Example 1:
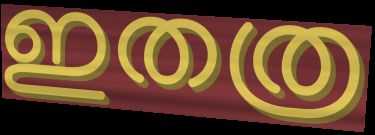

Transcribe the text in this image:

ഇതത്ര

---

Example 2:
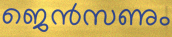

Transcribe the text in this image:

ജെൻസണും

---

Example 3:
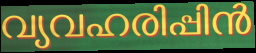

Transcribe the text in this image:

വ്യവഹരിപ്പിൻ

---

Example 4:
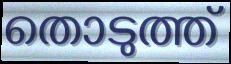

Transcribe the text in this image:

തൊടുത്ത്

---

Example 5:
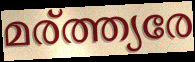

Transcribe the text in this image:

മര്ത്ത്യരേ